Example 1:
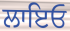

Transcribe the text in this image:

ਲਾਇਓ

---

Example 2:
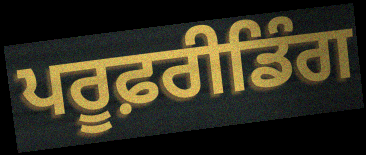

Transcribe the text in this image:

ਪਰੂਫ਼ਰੀਡਿੰਗ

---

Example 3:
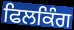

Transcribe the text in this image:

ਫਿਲਕਿੰਗ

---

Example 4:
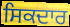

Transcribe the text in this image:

ਸਿਕਦਾਰ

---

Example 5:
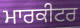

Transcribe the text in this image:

ਮਾਰਕੀਟਰ